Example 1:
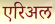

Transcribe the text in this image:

एरिअल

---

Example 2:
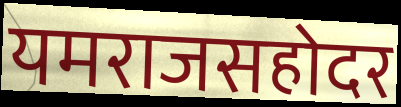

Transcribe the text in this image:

यमराजसहोदर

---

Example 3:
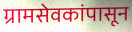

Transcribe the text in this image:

ग्रामसेवकांपासून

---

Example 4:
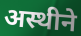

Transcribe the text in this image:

अस्थीने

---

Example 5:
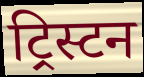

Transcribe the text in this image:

ट्रिस्टन